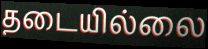
தடையில்லை